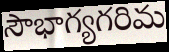
సౌభాగ్యగరిమ